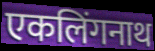
एकलिंगनाथ